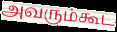
அவரும்கூட